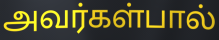
அவர்கள்பால்